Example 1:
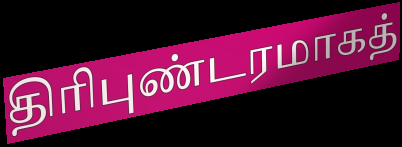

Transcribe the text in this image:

திரிபுண்டரமாகத்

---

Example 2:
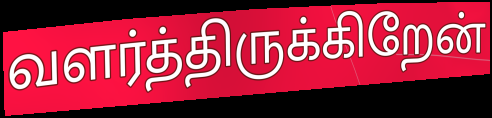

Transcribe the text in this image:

வளர்த்திருக்கிறேன்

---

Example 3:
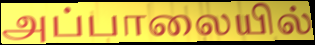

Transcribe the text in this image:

அப்பாலையில்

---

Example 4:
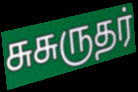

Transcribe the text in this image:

சுசுருதர்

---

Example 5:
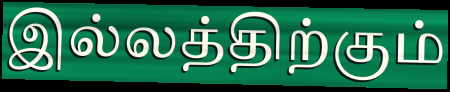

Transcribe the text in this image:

இல்லத்திற்கும்